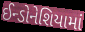
ઈન્ડોનેશિયામાં